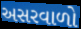
અસરવાળો